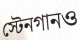
স্টেনগানও